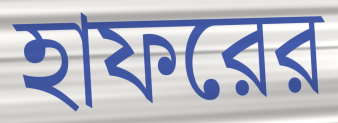
হাফরের